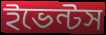
ইভেন্টস